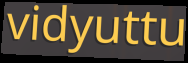
vidyuttu